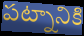
పట్నానికి